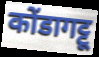
कोंडागट्टू